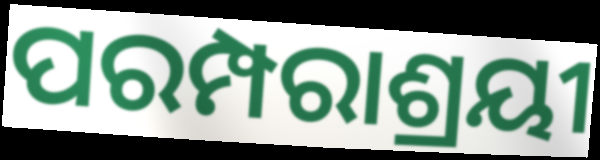
ପରମ୍ପରାଶ୍ରୟୀ